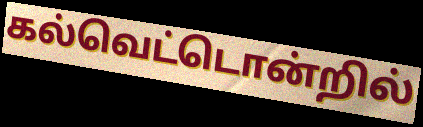
கல்வெட்டொன்றில்